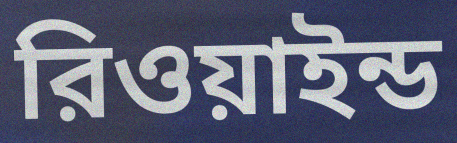
রিওয়াইন্ড